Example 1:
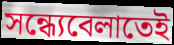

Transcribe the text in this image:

সন্ধ্যেবেলাতেই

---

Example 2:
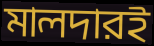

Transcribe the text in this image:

মালদারই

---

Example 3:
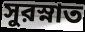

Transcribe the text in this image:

সুরস্নাত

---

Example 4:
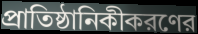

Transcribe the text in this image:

প্রাতিষ্ঠানিকীকরণের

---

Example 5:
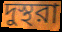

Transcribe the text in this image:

দুস্থরা